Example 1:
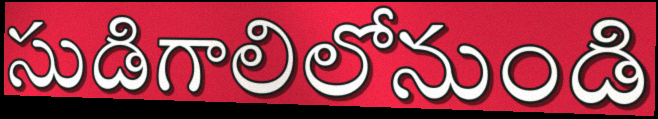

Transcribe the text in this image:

సుడిగాలిలోనుండి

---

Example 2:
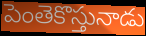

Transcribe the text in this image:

పెంతెకొస్తునాడు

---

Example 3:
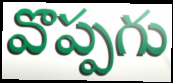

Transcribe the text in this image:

వొప్పగు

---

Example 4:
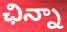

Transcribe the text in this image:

ఛిన్నా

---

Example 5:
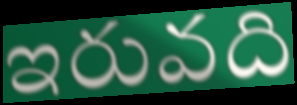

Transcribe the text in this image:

ఇరువది